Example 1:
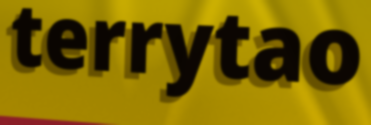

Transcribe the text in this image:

terrytao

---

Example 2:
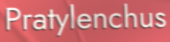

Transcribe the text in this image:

Pratylenchus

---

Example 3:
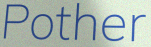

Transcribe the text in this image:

Pother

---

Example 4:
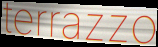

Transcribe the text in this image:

terrazzo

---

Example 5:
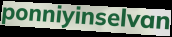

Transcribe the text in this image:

ponniyinselvan